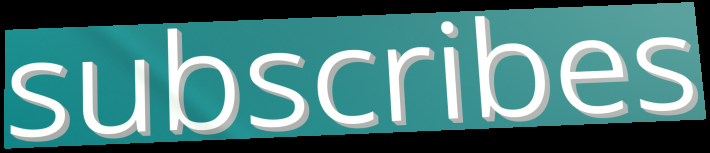
subscribes